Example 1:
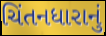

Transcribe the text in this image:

ચિંતનધારાનું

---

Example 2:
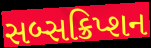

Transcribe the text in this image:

સબ્સક્રિપ્શન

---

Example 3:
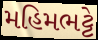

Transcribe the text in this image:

મહિમભટ્ટે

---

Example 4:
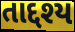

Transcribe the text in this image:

તાદ્દશ્ય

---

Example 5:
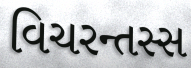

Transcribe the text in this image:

વિચરન્તસ્સ